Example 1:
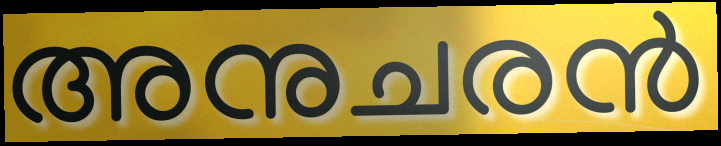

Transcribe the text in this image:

അനുചരൻ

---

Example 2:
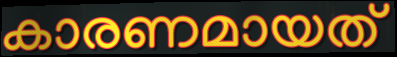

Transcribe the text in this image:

കാരണമായത്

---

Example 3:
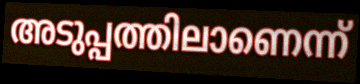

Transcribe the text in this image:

അടുപ്പത്തിലാണെന്ന്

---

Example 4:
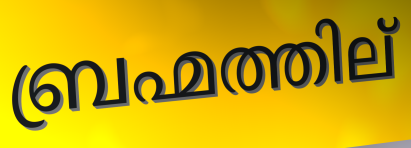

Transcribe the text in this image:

ബ്രഹ്മത്തില്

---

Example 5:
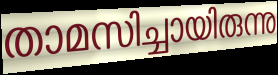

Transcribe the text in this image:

താമസിച്ചായിരുന്നു